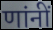
णांनीं